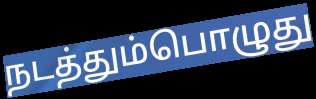
நடத்தும்பொழுது